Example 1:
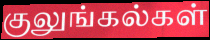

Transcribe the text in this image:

குலுங்கல்கள்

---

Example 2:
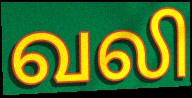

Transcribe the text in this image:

வலி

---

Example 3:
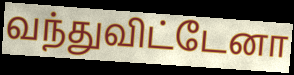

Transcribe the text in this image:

வந்துவிட்டேனா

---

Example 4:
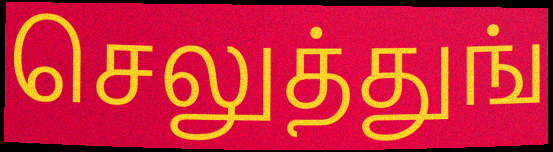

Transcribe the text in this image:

செலுத்துங்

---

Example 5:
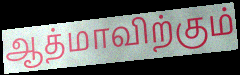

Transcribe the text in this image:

ஆத்மாவிற்கும்